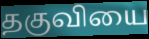
தகுவியை